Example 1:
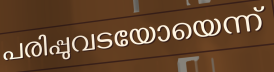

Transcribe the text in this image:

പരിപ്പുവടയോയെന്ന്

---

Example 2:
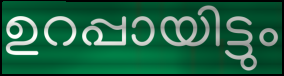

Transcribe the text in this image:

ഉറപ്പായിട്ടും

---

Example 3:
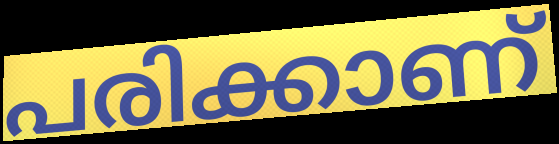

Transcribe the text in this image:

പരിക്കാണ്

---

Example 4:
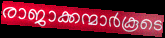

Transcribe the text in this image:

രാജാക്കന്മാർകൂടെ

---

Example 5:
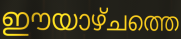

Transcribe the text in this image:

ഈയാഴ്ചത്തെ